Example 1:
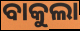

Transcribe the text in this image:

ବାକୁଲା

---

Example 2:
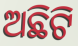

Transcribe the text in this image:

ଅଛିଟି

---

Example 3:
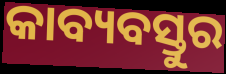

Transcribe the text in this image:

କାବ୍ୟବସ୍ତୁର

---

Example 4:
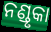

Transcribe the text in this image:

ନଣ୍ଡୃକା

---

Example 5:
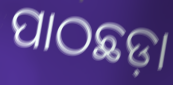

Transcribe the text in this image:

ପାଠଛଡ଼ା